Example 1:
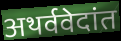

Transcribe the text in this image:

अथर्ववेदांत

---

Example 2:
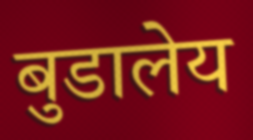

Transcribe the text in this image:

बुडालेय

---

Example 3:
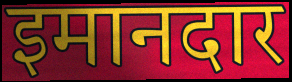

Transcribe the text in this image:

इमानदार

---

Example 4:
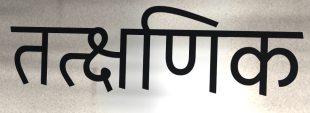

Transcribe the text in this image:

तत्क्षणिक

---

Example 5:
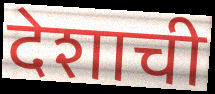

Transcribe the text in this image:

देशाची